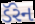
ડૅરેન